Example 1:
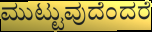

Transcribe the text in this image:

ಮುಟ್ಟುವುದೆಂದರೆ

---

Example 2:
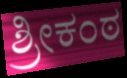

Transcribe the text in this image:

ಶ್ರೀಕಂಠ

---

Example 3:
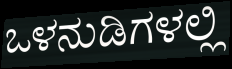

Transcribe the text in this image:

ಒಳನುಡಿಗಳಲ್ಲಿ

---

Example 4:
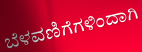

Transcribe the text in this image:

ಬೆಳವಣಿಗೆಗಳಿಂದಾಗಿ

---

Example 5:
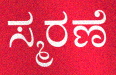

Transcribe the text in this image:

ಸ್ಮರಣೆ